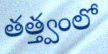
తత్త్వంలో